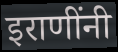
इराणींनी